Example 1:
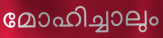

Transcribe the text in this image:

മോഹിച്ചാലും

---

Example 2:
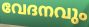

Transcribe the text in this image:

വേദനവും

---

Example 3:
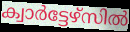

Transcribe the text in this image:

ക്വാർട്ടേഴ്സിൽ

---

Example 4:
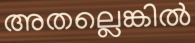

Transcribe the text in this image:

അതല്ലെങ്കിൽ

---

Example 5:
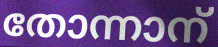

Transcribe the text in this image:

തോന്നാന്